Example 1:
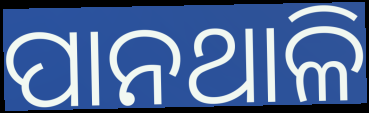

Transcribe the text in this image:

ପାନଥାଳି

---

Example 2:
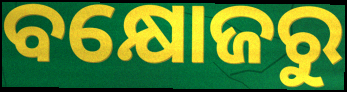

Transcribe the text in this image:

ବକ୍ଷୋଜରୁ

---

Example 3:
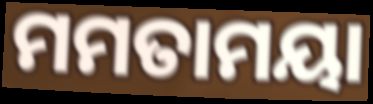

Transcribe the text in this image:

ମମତାମୟା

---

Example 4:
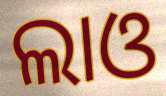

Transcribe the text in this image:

ଲାଓ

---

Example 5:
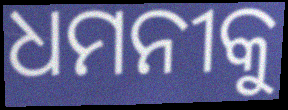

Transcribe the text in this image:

ଧମନୀକୁ